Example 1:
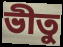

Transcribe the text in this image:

ভীতু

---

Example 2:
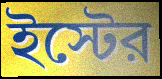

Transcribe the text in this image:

ইস্টের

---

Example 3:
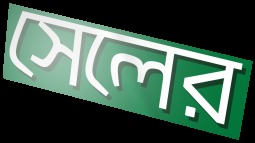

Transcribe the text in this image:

সেলের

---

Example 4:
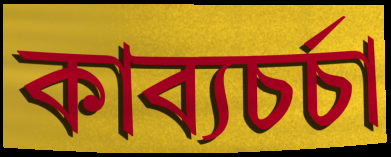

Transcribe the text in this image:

কাব্যচর্চা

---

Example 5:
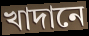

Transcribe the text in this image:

খাদানে